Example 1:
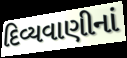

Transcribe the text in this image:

દિવ્યવાણીનાં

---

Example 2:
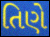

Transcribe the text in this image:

તિણે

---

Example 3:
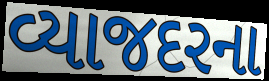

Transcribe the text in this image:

વ્યાજદરના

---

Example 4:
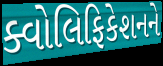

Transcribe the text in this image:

ક્વોલિફિકેશનને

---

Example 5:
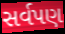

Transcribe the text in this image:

સર્વપણ